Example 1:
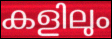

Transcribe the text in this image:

കളിലും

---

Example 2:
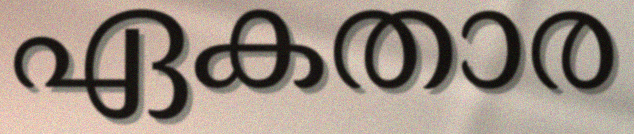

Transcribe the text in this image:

ഏകതാര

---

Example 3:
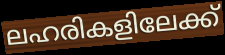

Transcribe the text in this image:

ലഹരികളിലേക്ക്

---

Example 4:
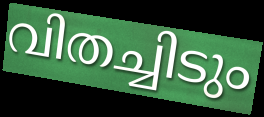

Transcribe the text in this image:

വിതച്ചിടും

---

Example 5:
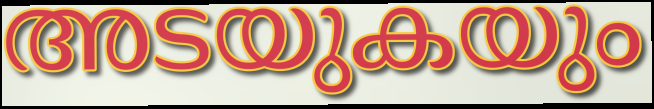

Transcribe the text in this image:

അടയുകയും